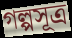
গল্পসূত্র